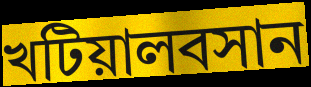
খটিয়ালবসান